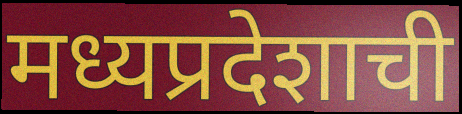
मध्यप्रदेशाची